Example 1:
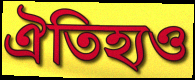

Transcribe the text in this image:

ঐতিহ্যও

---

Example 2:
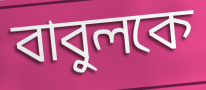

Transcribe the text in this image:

বাবুলকে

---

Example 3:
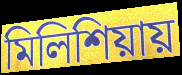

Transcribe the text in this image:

মিলিশিয়ায়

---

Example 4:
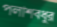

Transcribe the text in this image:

পলাশবধুর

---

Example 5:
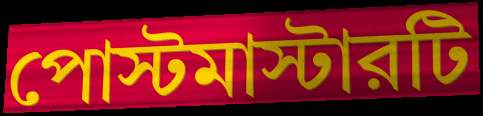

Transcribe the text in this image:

পোস্টমাস্টারটি